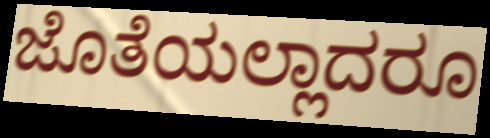
ಜೊತೆಯಲ್ಲಾದರೂ